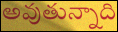
అవుతున్నాది